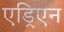
एड्रिएन